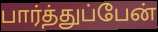
பார்த்துப்பேன்